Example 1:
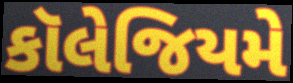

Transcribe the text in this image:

કૉલેજિયમે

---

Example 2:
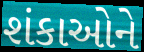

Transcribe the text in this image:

શંકાઓને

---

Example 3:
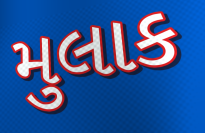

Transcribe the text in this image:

મુલાક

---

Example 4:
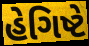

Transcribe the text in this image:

હેગિષ્ટે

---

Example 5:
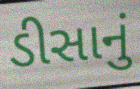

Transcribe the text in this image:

ડીસાનું